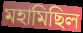
মহামিছিল